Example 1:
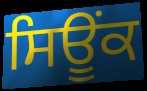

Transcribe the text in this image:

ਸਿਊਂਕ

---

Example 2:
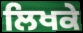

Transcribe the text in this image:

ਲਿਖਕੇ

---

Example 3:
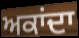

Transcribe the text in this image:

ਅਕਾਂਦਾ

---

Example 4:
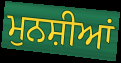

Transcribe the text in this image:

ਮੁਨਸ਼ੀਆਂ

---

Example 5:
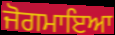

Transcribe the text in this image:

ਜੋਗਮਾਇਆ